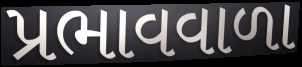
પ્રભાવવાળા